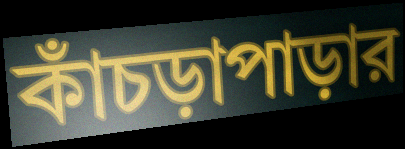
কাঁচড়াপাড়ার